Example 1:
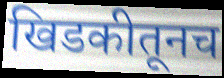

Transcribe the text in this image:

खिडकीतूनच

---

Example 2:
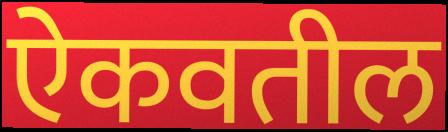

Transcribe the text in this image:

ऐकवतील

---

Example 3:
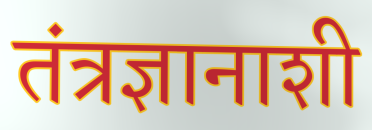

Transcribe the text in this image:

तंत्रज्ञानाशी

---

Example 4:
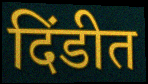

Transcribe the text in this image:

दिंडीत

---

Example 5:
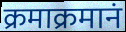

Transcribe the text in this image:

क्रमाक्रमानं